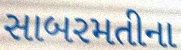
સાબરમતીના